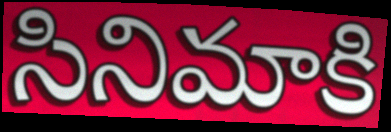
సినిమాకి